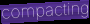
compacting